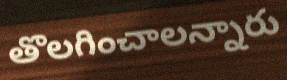
తొలగించాలన్నారు